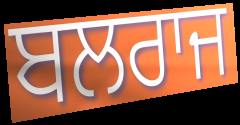
ਬਲਰਾਜ